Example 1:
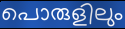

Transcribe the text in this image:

പൊരുളിലും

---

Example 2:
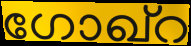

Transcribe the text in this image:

ഗോഖ്റ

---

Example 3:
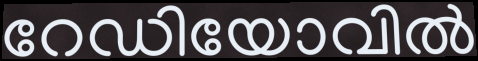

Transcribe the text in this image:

റേഡിയോവിൽ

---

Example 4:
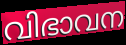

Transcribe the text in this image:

വിഭാവന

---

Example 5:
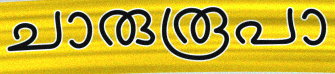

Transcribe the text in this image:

ചാരുരൂപാ